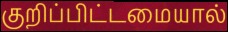
குறிப்பிட்டமையால்